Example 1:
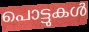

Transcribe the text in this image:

പൊട്ടുകൾ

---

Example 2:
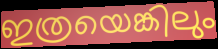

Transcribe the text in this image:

ഇത്രയെങ്കിലും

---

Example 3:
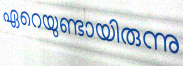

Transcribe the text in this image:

ഏറെയുണ്ടായിരുന്നു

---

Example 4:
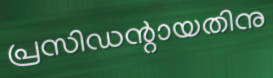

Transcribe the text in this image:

പ്രസിഡന്റായതിനു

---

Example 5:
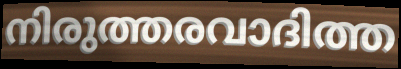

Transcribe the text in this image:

നിരുത്തരവാദിത്ത